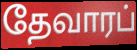
தேவாரப்